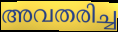
അവതരിച്ച